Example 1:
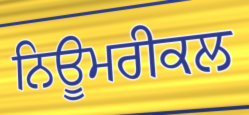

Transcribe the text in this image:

ਨਿਊਮਰੀਕਲ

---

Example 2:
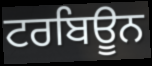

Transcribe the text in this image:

ਟਰਬਿਊਨ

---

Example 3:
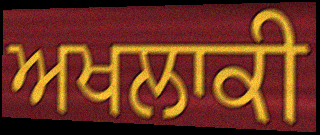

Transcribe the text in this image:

ਅਖਲਾਕੀ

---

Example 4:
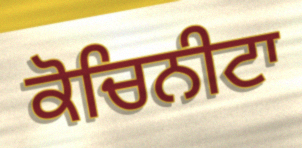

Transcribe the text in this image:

ਕੋਚਿਨੀਟਾ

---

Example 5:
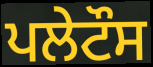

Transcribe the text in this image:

ਪਲੇਟੌਸ